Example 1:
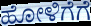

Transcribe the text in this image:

ಹೋಳಿಗೆಗೆ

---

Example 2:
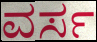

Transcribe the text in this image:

ವರ್ಸ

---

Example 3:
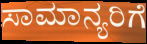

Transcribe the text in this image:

ಸಾಮಾನ್ಯರಿಗೆ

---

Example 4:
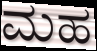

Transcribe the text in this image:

ಮಹ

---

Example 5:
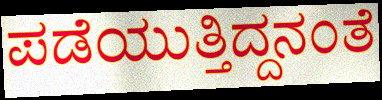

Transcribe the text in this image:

ಪಡೆಯುತ್ತಿದ್ದನಂತೆ